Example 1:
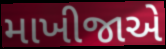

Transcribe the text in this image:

માખીજાએ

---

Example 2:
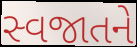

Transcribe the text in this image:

સ્વજાતને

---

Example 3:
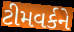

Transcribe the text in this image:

ટીમવર્કને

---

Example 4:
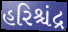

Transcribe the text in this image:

હરિશ્ચંદ્ર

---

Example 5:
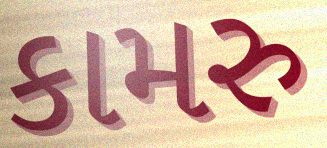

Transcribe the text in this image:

કામરુ